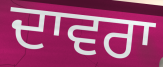
ਦਾਵਰਾ